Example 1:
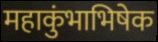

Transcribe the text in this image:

महाकुंभाभिषेक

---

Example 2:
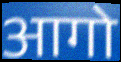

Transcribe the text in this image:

आगो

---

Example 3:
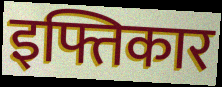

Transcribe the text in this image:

इफ्तिकार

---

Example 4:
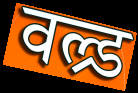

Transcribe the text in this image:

वल्र्ड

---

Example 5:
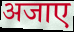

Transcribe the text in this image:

अजाए